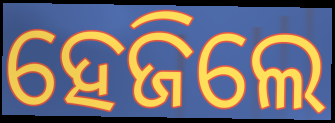
ହେଜିଲେ